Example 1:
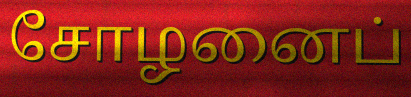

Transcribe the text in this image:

சோழனைப்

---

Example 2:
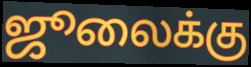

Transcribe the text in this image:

ஜூலைக்கு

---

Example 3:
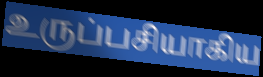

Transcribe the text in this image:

உருப்பசியாகிய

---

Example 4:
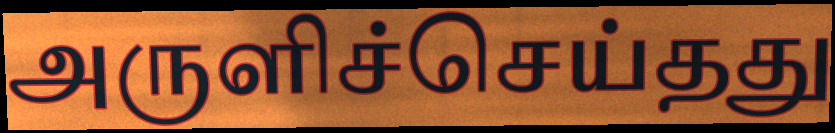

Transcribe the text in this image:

அருளிச்செய்தது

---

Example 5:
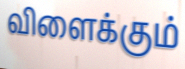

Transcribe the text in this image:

விளைக்கும்